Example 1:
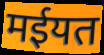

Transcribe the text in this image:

मईयत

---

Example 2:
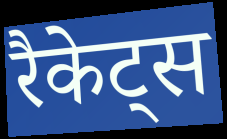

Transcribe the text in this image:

रैकेट्स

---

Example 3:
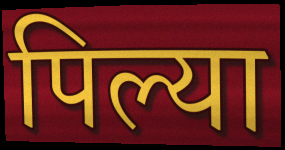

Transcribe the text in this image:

पिल्या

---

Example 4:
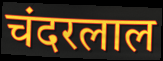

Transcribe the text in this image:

चंदरलाल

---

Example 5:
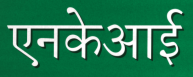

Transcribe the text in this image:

एनकेआई